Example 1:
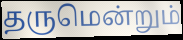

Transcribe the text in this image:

தருமென்றும்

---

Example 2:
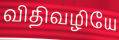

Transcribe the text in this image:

விதிவழியே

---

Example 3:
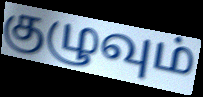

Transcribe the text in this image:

குழுவும்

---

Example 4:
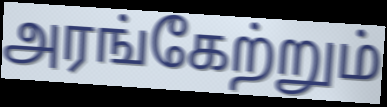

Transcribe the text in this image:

அரங்கேற்றும்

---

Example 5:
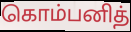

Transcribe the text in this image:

கொம்பனித்